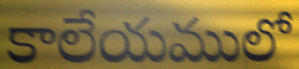
కాలేయములో